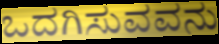
ಒದಗಿಸುವವನು